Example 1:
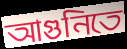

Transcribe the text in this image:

আগুনিতে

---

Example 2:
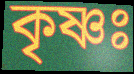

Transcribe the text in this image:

কৃষ্ণঃ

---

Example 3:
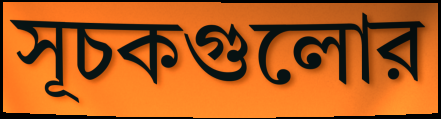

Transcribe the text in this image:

সূচকগুলোর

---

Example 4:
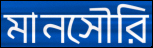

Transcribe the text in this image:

মানসৌরি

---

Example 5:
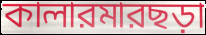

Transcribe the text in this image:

কালারমারছড়া